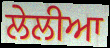
ਲੇਲੀਆ